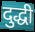
दुद्धी